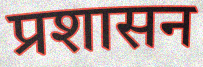
प्रशासन